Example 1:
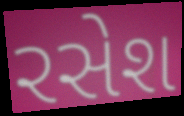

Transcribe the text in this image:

રસેશ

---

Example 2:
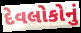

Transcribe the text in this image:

દેવલોકોનું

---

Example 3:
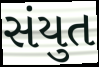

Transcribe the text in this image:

સંયુત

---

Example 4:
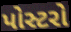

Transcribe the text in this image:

પોસ્ટરો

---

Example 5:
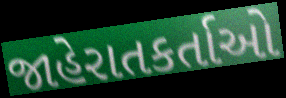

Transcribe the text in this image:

જાહેરાતકર્તાઓ